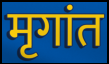
मृगांत